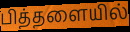
பித்தளையில்